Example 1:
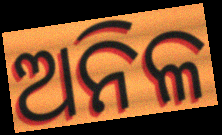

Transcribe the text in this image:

ଅନିଳ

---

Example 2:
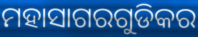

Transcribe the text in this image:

ମହାସାଗରଗୁଡିକର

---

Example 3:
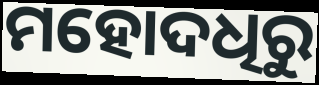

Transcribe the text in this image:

ମହୋଦଧିରୁ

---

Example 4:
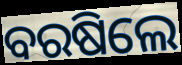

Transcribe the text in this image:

ବରଷିଲେ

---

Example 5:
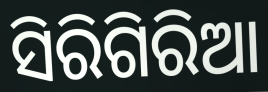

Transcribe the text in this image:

ସିରିଗିରିଆ